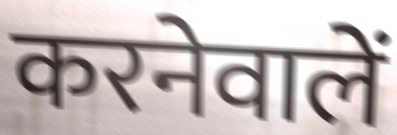
करनेवालें